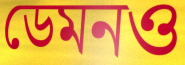
ডেমনও